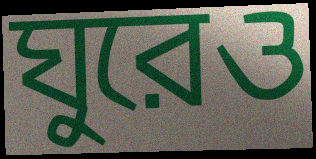
ঘুরেও